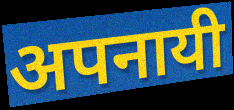
अपनायी